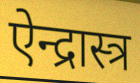
ऐन्द्रास्त्र